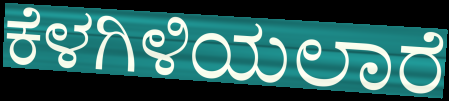
ಕೆಳಗಿಳಿಯಲಾರೆ